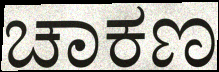
ಚಾಕಣ